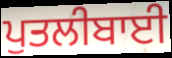
ਪੁਤਲੀਬਾਈ